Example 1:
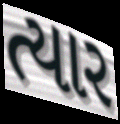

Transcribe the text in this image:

ત્યાર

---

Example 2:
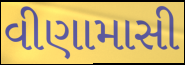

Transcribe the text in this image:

વીણામાસી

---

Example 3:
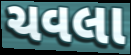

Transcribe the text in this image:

ચવલા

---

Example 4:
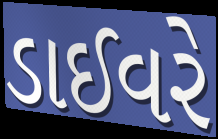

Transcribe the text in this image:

ડાઈવરે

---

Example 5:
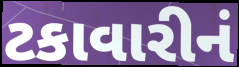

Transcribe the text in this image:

ટકાવારીનં